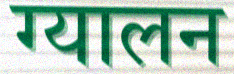
ग्यालन